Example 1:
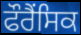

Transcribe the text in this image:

ਫੌਰੈਂਸਿਕ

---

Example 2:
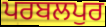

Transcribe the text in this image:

ਪਰਬਲਪੁਰ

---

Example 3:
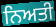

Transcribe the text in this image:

ਨਿਅਤੀ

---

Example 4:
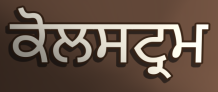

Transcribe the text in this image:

ਕੋਲਸਟ੍ਰਮ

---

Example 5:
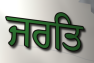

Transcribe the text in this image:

ਜਰਤਿ